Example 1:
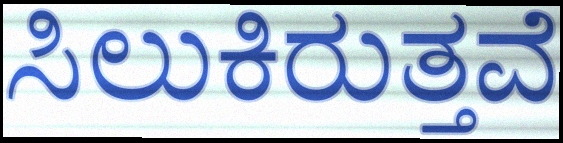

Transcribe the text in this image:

ಸಿಲುಕಿರುತ್ತವೆ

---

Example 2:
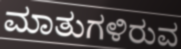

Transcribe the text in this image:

ಮಾತುಗಳಿರುವ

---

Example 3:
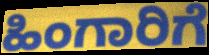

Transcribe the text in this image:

ಹಿಂಗಾರಿಗೆ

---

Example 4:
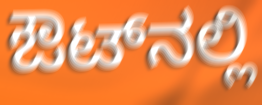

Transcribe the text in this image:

ಔಟ್‌ನಲ್ಲಿ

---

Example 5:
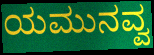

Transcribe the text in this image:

ಯಮುನವ್ವ